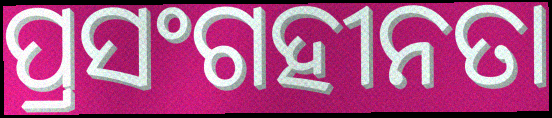
ପ୍ରସଂଗହୀନତା